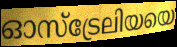
ഓസ്ട്രേലിയയെ